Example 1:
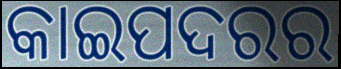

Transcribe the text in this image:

କାଇପଦରର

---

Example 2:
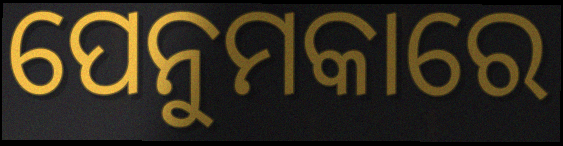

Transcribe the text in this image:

ପେନୁମକାରେ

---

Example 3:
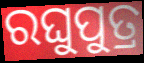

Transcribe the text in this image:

ରଘୁପୁତ୍ର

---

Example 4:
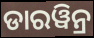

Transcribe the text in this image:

ଡାରୱିନ୍ର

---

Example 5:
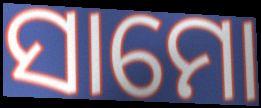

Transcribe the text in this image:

ସାମୋ